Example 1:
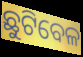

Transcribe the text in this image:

ଛୁଟିବେଳ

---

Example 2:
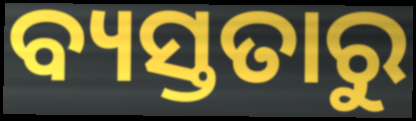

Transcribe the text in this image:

ବ୍ୟସ୍ତତାରୁ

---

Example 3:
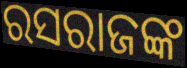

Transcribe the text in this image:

ରସରାଜଙ୍କ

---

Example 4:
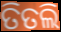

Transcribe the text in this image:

ତିତଲି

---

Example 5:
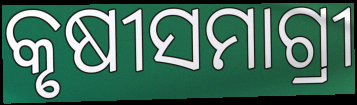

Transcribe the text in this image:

କୃଷୀସମାଗ୍ରୀ